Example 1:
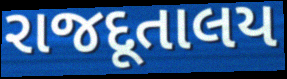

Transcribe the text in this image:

રાજદૂતાલય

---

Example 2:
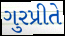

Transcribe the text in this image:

ગુરપ્રીતે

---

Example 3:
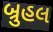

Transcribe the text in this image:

બ્રુહલ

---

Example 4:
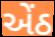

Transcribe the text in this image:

એંઠ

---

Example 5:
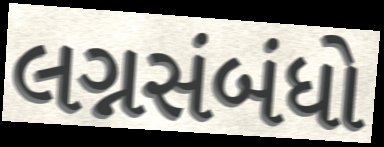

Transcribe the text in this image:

લગ્નસંબંધો